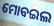
ମୋବଇଲ